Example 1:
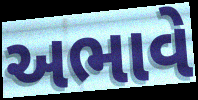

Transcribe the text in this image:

અભાવે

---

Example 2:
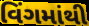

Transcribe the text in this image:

વિંગમાંથી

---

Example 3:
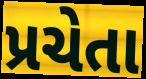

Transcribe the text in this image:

પ્રચેતા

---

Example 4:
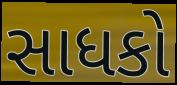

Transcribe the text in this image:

સાધકો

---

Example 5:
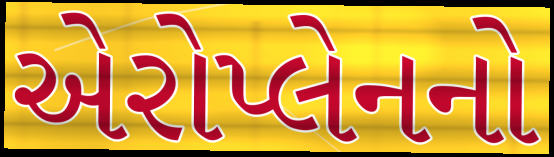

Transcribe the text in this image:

એરોપ્લેનનો